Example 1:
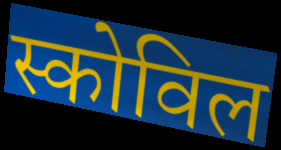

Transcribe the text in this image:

स्कोविल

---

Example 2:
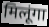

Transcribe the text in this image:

मिलूंगा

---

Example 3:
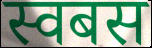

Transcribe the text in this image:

स्वबस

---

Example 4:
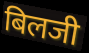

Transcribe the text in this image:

बिलजी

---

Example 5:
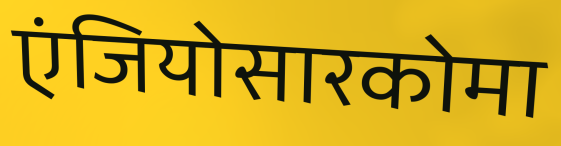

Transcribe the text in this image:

एंजियोसारकोमा